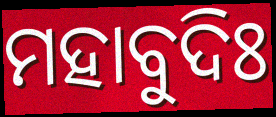
ମହାବୁଦିଃ